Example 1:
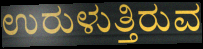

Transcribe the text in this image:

ಉರುಳುತ್ತಿರುವ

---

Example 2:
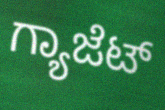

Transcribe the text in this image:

ಗ್ಯಾಜೆಟ್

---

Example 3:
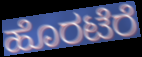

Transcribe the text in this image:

ಹೊರಟೆರೆ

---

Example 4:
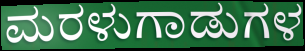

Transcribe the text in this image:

ಮರಳುಗಾಡುಗಳ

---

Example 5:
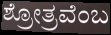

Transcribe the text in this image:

ಶ್ರೋತ್ರವೆಂಬ